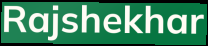
Rajshekhar